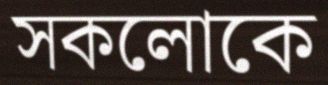
সকলোকে